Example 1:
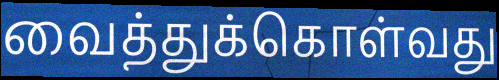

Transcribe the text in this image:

வைத்துக்கொள்வது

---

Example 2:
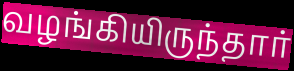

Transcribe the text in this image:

வழங்கியிருந்தார்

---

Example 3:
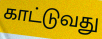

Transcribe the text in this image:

காட்டுவது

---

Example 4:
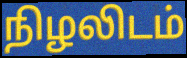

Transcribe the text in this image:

நிழலிடம்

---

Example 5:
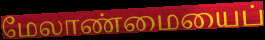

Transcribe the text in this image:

மேலாண்மையைப்